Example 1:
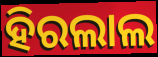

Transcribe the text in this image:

ହିରଲାଲ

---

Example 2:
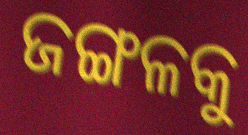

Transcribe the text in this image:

ଜଙ୍ଗଳକୁ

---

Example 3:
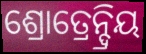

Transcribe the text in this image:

ଶ୍ରୋତ୍ରେନ୍ଦ୍ରିୟ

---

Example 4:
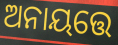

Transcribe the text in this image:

ଅନାୟତ୍ତେ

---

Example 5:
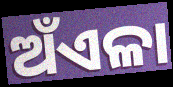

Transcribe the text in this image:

ଅଁଏଳା